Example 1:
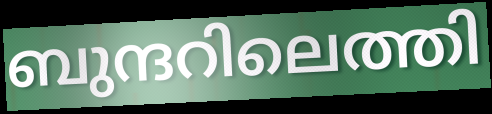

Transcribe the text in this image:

ബുന്ദറിലെത്തി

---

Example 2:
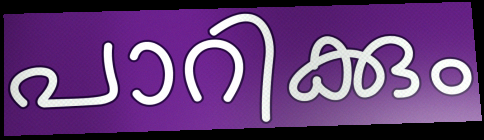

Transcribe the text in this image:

പാറിക്കും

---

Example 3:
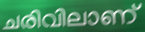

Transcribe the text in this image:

ചരിവിലാണ്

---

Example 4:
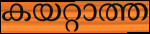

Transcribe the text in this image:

കയറ്റാത്ത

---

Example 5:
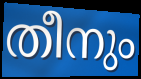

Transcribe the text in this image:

തീനും